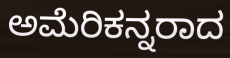
ಅಮೆರಿಕನ್ನರಾದ